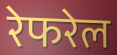
रेफरेल